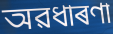
অৱধাৰণা